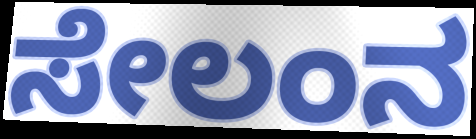
ಸೇಲಂನ